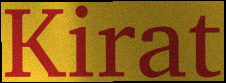
Kirat